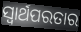
ସ୍ଵାର୍ଥପରତାର